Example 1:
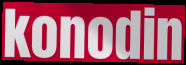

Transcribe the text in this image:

konodin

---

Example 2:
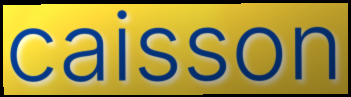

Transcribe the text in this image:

caisson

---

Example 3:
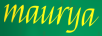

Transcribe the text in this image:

maurya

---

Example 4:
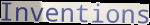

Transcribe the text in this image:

Inventions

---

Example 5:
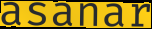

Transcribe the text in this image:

asanar